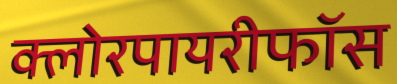
क्लोरपायरीफॉस